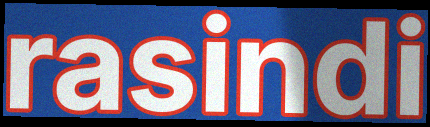
rasindi